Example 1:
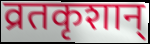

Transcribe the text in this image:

व्रतकृशान्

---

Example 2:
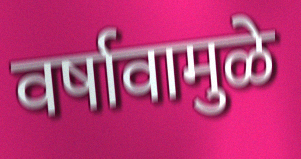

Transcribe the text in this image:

वर्षावामुळे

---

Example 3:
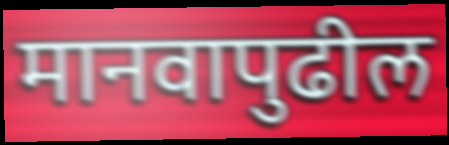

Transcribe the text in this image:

मानवापुढील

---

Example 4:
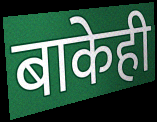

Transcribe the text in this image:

बाकेही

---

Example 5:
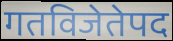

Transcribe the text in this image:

गतविजेतेपद